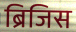
ब्रिजिस